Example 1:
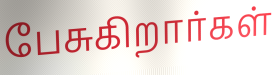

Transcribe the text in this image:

பேசுகிறார்கள்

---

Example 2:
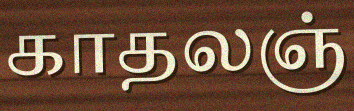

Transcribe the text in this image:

காதலஞ்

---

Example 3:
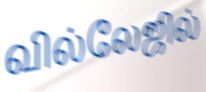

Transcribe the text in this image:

வில்லேஜில்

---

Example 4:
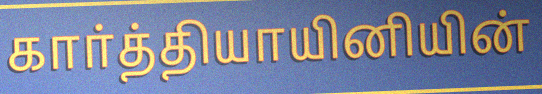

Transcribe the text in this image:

கார்த்தியாயினியின்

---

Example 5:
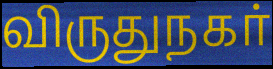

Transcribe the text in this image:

விருதுநகர்